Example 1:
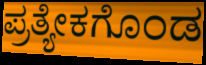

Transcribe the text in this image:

ಪ್ರತ್ಯೇಕಗೊಂಡ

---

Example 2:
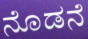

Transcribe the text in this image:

ನೊಡನೆ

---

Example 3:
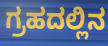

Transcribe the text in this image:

ಗ್ರಹದಲ್ಲಿನ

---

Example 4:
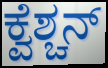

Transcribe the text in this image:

ಕ್ವೆಶ್ಚನ್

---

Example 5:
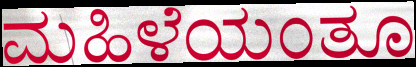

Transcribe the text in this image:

ಮಹಿಳೆಯಂತೂ